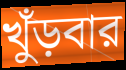
খুঁড়বার